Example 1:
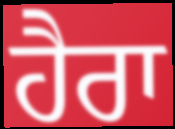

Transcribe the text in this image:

ਹੈਰਾ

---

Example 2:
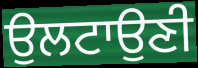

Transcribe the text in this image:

ਉਲਟਾਉਣੀ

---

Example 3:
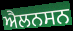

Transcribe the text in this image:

ਐਲਨਸਨ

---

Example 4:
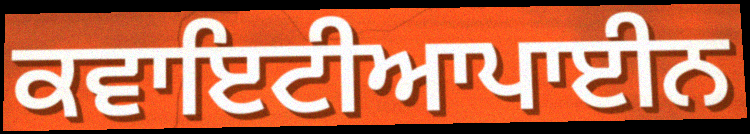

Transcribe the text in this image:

ਕਵਾਇਟੀਆਪਾਈਨ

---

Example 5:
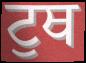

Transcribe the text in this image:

ਟੁਥ